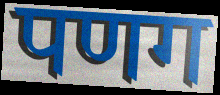
पणग